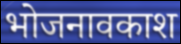
भोजनावकाश